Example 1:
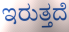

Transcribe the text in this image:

ಇರುತ್ತದೆ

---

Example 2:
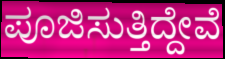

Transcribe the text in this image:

ಪೂಜಿಸುತ್ತಿದ್ದೇವೆ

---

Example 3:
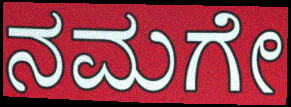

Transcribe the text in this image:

ನಮಗೇ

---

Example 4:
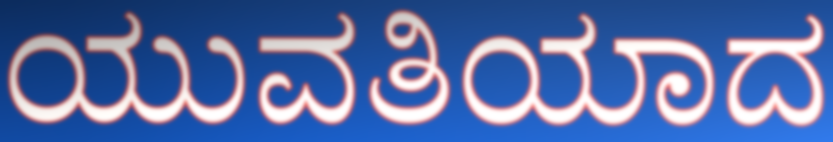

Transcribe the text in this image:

ಯುವತಿಯಾದ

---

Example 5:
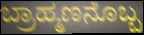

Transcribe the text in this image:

ಬ್ರಾಹ್ಮಣನೊಬ್ಬ